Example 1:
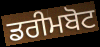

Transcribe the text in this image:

ਡਰੀਮਬੋਟ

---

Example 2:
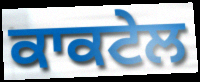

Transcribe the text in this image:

ਕਾਕਟੇਲ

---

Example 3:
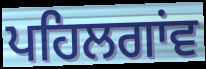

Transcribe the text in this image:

ਪਹਿਲਗਾਂਵ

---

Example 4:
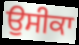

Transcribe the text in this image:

ਉਸੀਕਾ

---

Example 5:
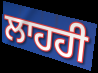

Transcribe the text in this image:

ਲਾਹਹੀ